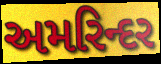
અમરિન્દર